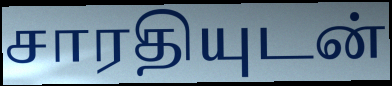
சாரதியுடன்